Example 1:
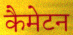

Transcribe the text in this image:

कैमेटन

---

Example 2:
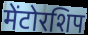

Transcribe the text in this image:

मेंटोरशिप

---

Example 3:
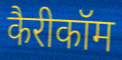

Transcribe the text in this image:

कैरीकॉम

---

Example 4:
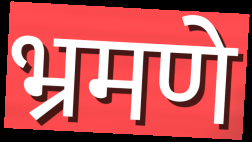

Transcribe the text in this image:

भ्रमणे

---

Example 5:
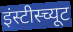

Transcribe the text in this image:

इंस्टीस्च्यूट